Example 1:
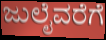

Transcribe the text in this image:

ಜುಲೈವರೆಗೆ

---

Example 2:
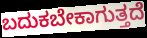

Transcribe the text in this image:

ಬದುಕಬೇಕಾಗುತ್ತದೆ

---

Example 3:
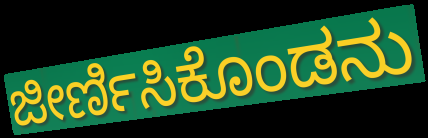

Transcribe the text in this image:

ಜೀರ್ಣಿಸಿಕೊಂಡನು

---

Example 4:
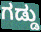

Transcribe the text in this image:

ಗಡ್ಡು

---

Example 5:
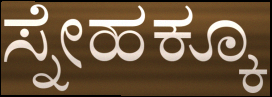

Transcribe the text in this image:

ಸ್ನೇಹಕ್ಕೂ